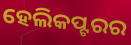
ହେଲିକପ୍ଟରର